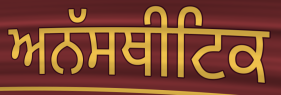
ਅਨੱਸਥੀਟਿਕ